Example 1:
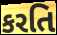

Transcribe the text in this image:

કરતિ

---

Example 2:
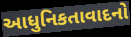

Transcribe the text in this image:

આધુનિકતાવાદનો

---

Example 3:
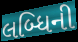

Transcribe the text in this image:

લબ્ધિની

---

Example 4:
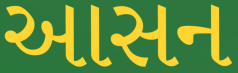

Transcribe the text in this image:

આસન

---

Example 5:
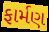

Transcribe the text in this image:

ફાર્મણ